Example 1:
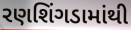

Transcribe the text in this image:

રણશિંગડામાંથી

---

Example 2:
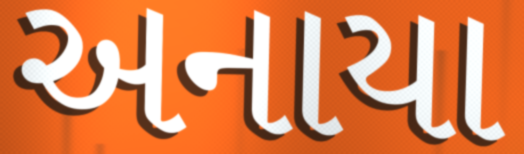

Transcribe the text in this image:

અનાયા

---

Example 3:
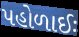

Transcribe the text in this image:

પહોળાઈઃ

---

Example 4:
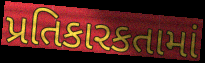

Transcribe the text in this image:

પ્રતિકારકતામાં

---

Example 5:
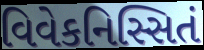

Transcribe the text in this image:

વિવેકનિસ્સિતં